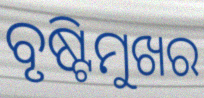
ବୃଷ୍ଟିମୁଖର